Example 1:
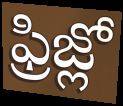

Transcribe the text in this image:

ఫ్రిజ్లో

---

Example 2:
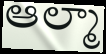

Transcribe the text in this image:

ఆల్మా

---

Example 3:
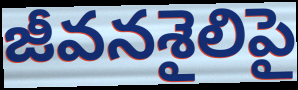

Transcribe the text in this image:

జీవనశైలిపై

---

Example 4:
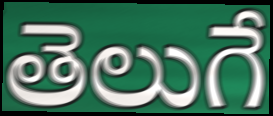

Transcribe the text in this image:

తెలుగే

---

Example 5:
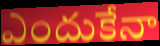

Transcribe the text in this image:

ఎందుకేనా